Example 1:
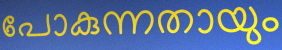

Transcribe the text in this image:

പോകുന്നതായും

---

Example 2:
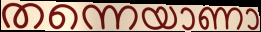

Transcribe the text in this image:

തന്നെയാണാ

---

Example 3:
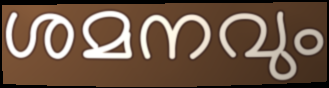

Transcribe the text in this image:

ശമനവും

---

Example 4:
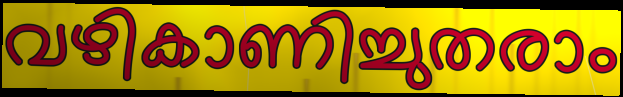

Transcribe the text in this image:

വഴികാണിച്ചുതരാം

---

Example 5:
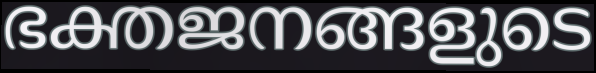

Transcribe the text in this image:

ഭക്തജനങ്ങളുടെ